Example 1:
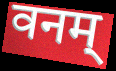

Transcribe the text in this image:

वनम्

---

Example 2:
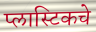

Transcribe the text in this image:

प्लास्टिकचे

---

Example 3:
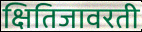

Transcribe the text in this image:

क्षितिजावरती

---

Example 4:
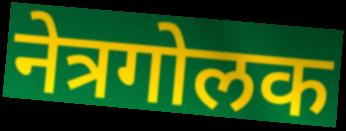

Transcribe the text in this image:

नेत्रगोलक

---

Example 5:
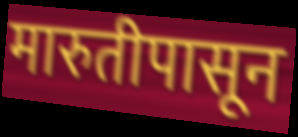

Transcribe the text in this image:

मारुतीपासून